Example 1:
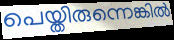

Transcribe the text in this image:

പെയ്തിരുന്നെങ്കിൽ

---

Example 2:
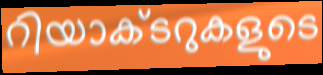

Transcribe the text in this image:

റിയാക്ടറുകളുടെ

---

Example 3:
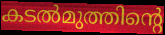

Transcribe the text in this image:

കടൽമുത്തിന്റെ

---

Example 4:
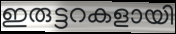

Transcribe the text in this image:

ഇരുട്ടറകളായി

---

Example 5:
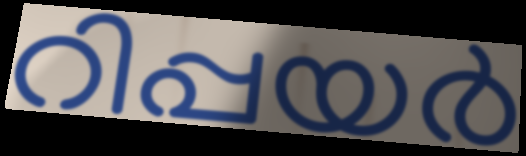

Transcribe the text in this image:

റിപ്പയർ